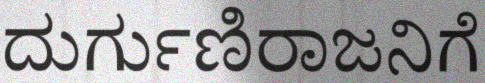
ದುರ್ಗುಣಿರಾಜನಿಗೆ